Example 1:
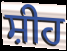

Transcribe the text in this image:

ਸ਼ੀਹ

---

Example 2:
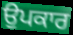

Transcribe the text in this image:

ਉਪਕਾਰ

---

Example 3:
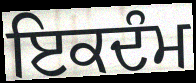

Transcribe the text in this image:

ਇਕਦੰਮ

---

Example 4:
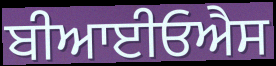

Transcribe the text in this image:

ਬੀਆਈਓਐਸ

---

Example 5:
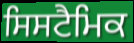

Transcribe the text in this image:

ਸਿਸਟੈਮਿਕ